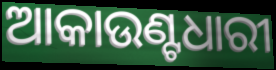
ଆକାଉଣ୍ଟଧାରୀ